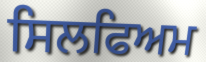
ਸਿਲਫਿਅਮ